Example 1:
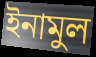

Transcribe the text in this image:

ইনামুল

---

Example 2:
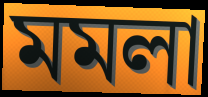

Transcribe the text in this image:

মমলা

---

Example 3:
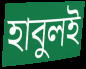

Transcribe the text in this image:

হাবুলই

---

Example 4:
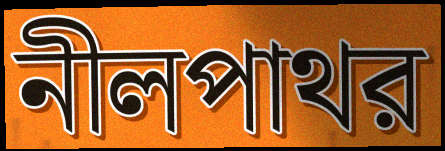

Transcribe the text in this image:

নীলপাথর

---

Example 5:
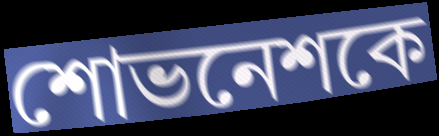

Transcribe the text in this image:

শোভনেশকে